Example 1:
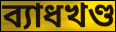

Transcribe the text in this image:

ব্যাধখণ্ড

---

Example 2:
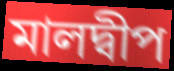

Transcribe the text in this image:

মালদ্বীপ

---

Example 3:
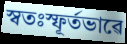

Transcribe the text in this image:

স্বতঃস্ফূৰ্তভাৱে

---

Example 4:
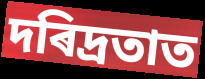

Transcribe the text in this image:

দৰিদ্ৰতাত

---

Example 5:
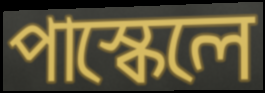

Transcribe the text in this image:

পাস্কেলে